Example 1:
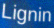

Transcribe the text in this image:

Lignin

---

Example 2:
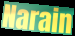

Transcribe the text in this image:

Narain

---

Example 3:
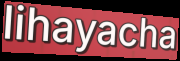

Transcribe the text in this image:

lihayacha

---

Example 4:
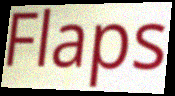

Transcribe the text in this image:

Flaps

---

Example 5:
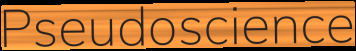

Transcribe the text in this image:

Pseudoscience